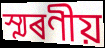
স্মৰণীয়